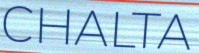
CHALTA